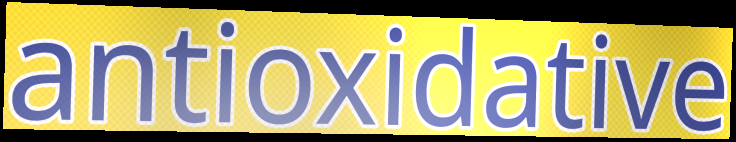
antioxidative